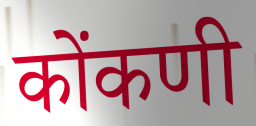
कोंकणी